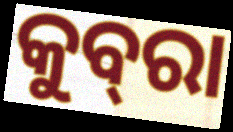
କୁବ୍‍ରା